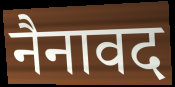
नैनावद